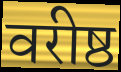
वरीष्ठ